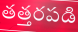
తత్తరపడి